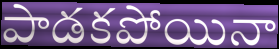
పాడకపోయినా